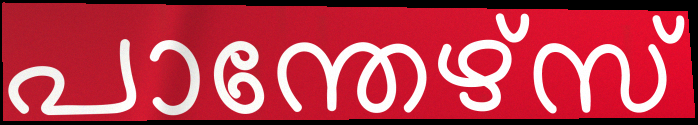
പാന്തേഴ്സ്